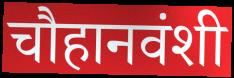
चौहानवंशी